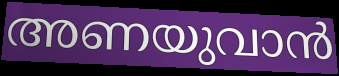
അണയുവാൻ